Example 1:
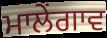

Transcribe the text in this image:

ਮਾਲੇਂਗਾਵ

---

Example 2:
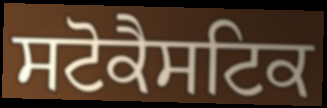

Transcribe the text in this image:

ਸਟੋਕੈਸਟਿਕ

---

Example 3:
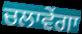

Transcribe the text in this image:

ਚਲਾਵੇਂਗਾ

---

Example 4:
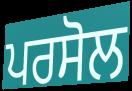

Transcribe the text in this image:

ਪਰਸੋਲ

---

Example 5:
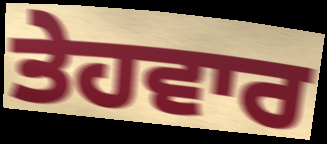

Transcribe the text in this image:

ਤੇਹਵਾਰ